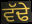
ਵੱਢੇ